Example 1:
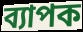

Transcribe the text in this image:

ব্যাপক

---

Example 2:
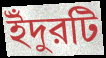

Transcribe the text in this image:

ইঁদুরটি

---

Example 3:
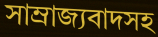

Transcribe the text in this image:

সাম্রাজ্যবাদসহ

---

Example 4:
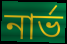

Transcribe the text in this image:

নার্ভ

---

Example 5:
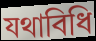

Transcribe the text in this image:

যথাবিধি